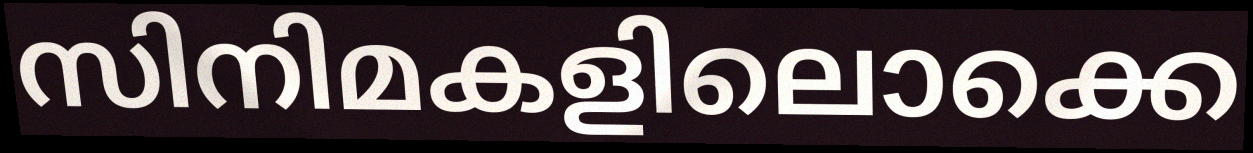
സിനിമകളിലൊക്കെ